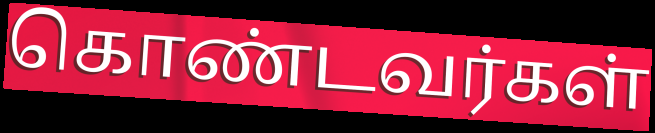
கொண்டவர்கள்